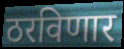
ठरविणार